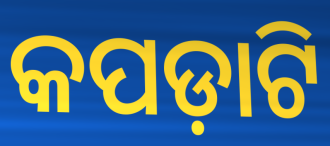
କପଡ଼ାଟି